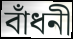
বাঁধনী